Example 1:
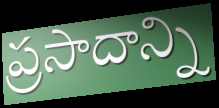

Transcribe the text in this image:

ప్రసాదాన్ని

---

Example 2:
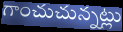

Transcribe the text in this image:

గాంచుచున్నట్లు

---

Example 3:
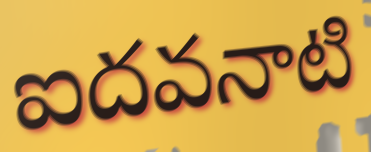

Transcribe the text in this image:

ఐదవనాటి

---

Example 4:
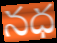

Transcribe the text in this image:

నధ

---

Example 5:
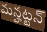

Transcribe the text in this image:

మన్హట్టన్